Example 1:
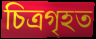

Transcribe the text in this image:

চিত্ৰগৃহত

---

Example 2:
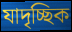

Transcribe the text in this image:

যাদৃচ্ছিক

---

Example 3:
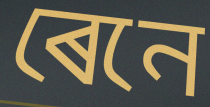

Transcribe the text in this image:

ৰেনে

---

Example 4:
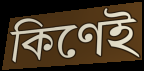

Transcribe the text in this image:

কিণেই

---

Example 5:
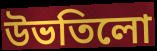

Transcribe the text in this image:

উভতিলো